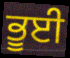
ਭੂਈ